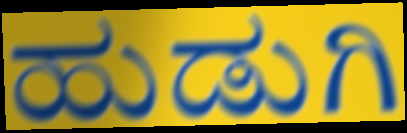
ಹುಡುಗಿ